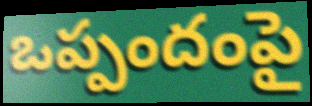
ఒప్పందంపై